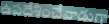
ఉపదేశించేవాడుగా